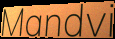
Mandvi